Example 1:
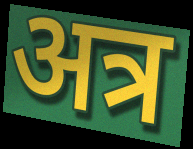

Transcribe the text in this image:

अत्र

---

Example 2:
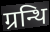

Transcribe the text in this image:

ग्रन्थि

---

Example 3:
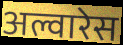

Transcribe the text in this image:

अल्वारेस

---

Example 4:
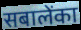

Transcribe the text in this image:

सबालेंका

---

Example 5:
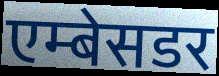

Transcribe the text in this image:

एम्बेसडर